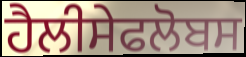
ਹੈਲੀਸੇਫਲੋਬਸ